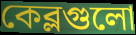
কেব্লগুলো